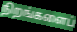
நிறங்களைப்